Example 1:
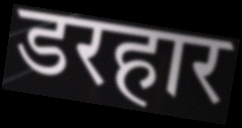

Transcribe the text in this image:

डरहार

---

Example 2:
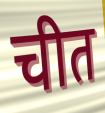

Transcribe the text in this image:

चीत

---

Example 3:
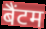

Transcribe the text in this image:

बैंटम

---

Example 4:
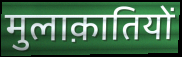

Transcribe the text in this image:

मुलाक़ातियों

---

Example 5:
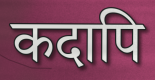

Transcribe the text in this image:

कदापि